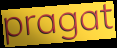
pragat